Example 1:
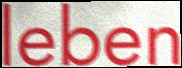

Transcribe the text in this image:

leben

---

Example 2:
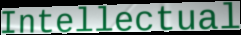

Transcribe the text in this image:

Intellectual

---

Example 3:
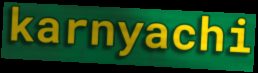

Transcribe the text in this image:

karnyachi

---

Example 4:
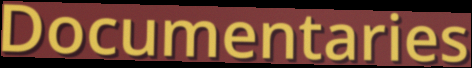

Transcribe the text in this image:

Documentaries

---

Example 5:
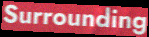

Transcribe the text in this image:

Surrounding